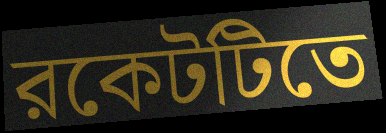
রকেটটিতে